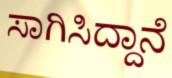
ಸಾಗಿಸಿದ್ದಾನೆ